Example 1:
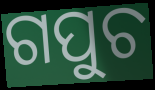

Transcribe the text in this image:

ଗପୁଚ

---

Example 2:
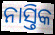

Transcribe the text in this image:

ନାସ୍ତିକ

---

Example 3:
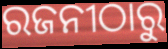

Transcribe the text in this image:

ରଜନୀଠାରୁ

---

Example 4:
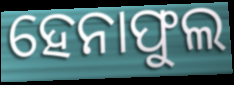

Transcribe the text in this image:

ହେନାଫୁଲ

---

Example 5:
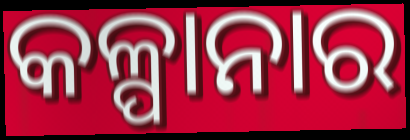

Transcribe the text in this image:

କଳ୍ପାନାର